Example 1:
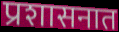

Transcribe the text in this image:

प्रशासनात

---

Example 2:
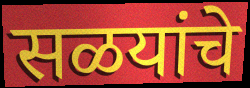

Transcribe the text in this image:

सळयांचे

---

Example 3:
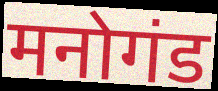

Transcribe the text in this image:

मनोगंड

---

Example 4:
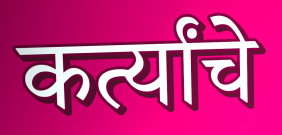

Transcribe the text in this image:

कर्त्यांचे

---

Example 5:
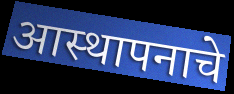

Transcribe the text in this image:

आस्थापनाचे